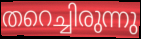
തറെച്ചിരുന്നു